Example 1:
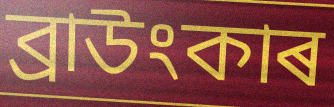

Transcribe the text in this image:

ব্ৰাউংকাৰ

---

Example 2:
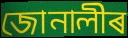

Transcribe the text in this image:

জোনালীৰ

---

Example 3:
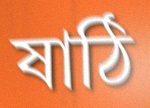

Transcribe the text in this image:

ষাঠি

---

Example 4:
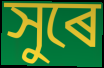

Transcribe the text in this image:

সুৰে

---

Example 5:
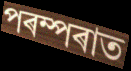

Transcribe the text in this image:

পৰম্পৰাত